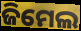
ଜିମେଲ